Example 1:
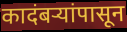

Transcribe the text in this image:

कादंबऱ्यांपासून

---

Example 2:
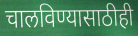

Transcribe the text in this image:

चालविण्यासाठीही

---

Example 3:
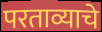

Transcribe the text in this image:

परताव्याचे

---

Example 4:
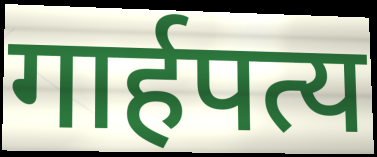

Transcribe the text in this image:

गार्हपत्य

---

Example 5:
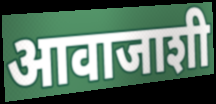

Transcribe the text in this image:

आवाजाशी